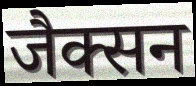
जैक्सन